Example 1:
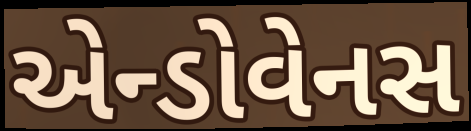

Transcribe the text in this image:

એન્ડોવેનસ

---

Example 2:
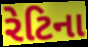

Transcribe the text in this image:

રેટિના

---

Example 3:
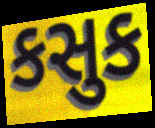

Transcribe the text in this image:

કસુક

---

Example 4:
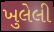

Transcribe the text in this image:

ખુલેલી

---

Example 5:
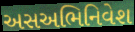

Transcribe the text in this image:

અસઅભિનિવેશ